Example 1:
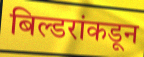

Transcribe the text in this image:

बिल्डरांकडून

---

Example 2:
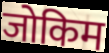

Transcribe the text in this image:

जोकिम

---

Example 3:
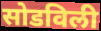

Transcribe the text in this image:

सोडविली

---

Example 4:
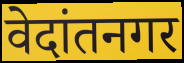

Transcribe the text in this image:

वेदांतनगर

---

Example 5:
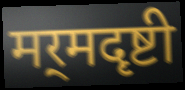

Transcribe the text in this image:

मर्मदृष्टी